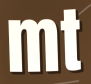
mt